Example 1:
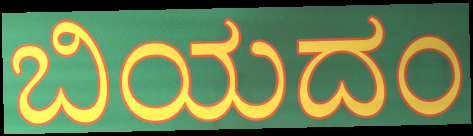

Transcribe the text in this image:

ಬಿಯದಂ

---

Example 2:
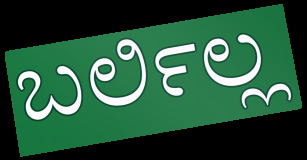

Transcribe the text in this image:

ಬರ್ಲಿಲ್ಲ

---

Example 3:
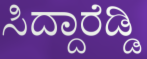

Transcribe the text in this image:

ಸಿದ್ದಾರೆಡ್ಡಿ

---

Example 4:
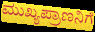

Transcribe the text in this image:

ಮುಖ್ಯಪ್ರಾಣನಿಗೆ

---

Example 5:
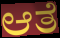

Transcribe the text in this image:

ಆತೆ